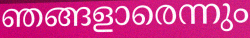
ഞങ്ങളാരെന്നും